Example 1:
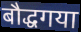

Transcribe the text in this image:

बौद्धगया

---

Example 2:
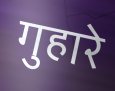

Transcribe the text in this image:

गुहारे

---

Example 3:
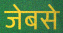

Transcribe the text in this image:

जेबसे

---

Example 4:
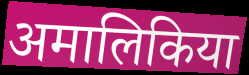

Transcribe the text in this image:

अमालिकिया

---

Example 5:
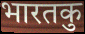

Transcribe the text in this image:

भारतकु